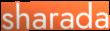
sharada